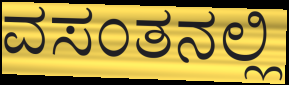
ವಸಂತನಲ್ಲಿ